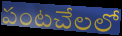
పంటచేలలో